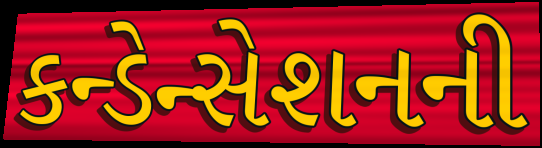
કન્ડેન્સેશનની